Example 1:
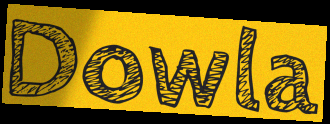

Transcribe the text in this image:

Dowla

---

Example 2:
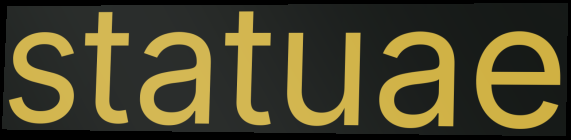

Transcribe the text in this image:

statuae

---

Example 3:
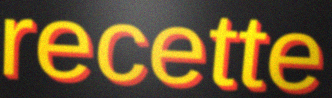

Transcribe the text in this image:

recette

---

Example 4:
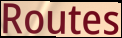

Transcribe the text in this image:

Routes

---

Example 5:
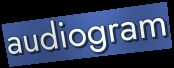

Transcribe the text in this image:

audiogram